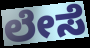
ಲೇಸೆ